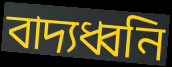
বাদ্যধ্বনি